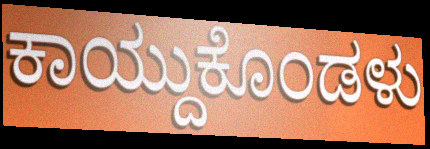
ಕಾಯ್ದುಕೊಂಡಳು